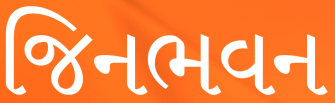
જિનભવન